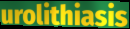
urolithiasis